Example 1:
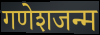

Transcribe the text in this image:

गणेशजन्म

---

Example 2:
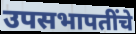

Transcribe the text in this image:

उपसभापतींचे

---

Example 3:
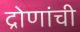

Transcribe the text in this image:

द्रोणांची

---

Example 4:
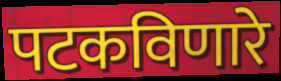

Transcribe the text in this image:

पटकविणारे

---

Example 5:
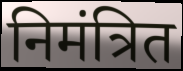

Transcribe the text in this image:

निमंत्रित